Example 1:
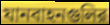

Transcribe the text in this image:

যানবাহনগুলির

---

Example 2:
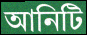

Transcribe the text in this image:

আনিটি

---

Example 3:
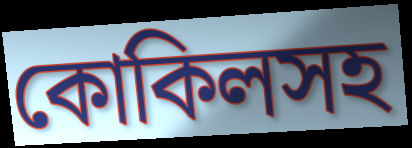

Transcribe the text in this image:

কোকিলসহ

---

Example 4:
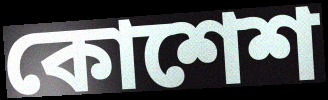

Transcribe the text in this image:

কোশেশ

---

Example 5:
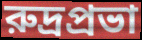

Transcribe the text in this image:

রুদ্রপ্রভা